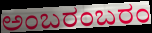
ಅಂಬರಂಬರಂ